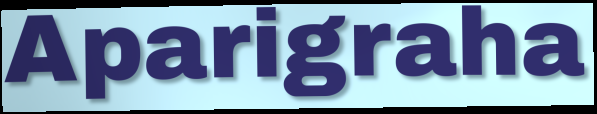
Aparigraha